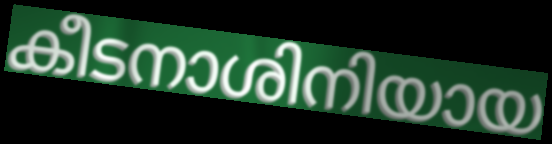
കീടനാശിനിയായ